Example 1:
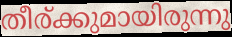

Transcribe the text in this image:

തീര്ക്കുമായിരുന്നു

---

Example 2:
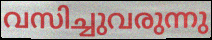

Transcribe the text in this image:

വസിച്ചുവരുന്നു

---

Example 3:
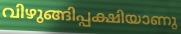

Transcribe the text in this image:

വിഴുങ്ങിപ്പക്ഷിയാണു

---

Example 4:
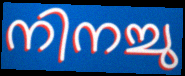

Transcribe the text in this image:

നിനച്ചു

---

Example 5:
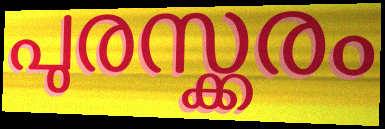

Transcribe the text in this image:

പുരസ്ക്കരം